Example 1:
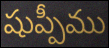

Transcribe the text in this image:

షుప్పీము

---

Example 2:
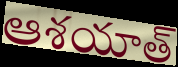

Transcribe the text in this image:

ఆశయాత్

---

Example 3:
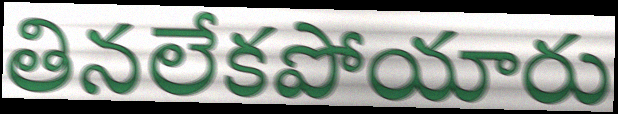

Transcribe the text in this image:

తినలేకపోయారు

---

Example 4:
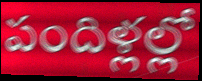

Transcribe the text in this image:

పందిళ్లల్లో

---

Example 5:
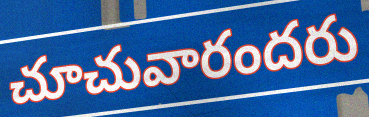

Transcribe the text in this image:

చూచువారందరు